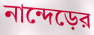
নান্দেড়ের